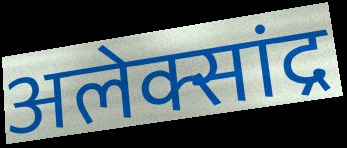
अलेक्सांद्र